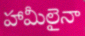
హామీలైనా